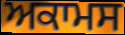
ਅਕਾਮਸ